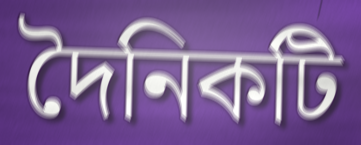
দৈনিকটি